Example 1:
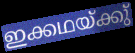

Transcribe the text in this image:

ഇക്കഥയ്ക്കു്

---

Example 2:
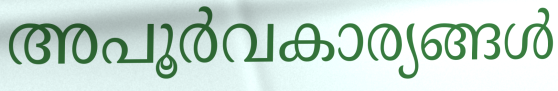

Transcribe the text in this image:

അപൂർവകാര്യങ്ങൾ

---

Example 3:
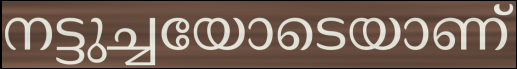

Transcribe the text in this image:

നട്ടുച്ചയോടെയാണ്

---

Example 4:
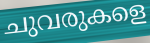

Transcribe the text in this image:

ചുവരുകളെ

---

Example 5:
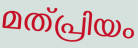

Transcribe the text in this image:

മത്പ്രിയം